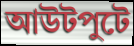
আউটপুটে